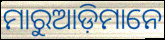
ମାରୁଆଡ଼ିମାନେ